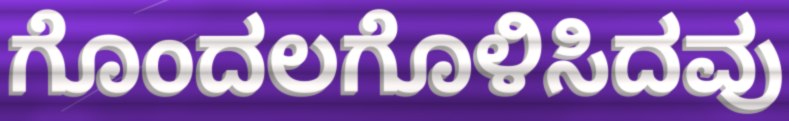
ಗೊಂದಲಗೊಳಿಸಿದವು